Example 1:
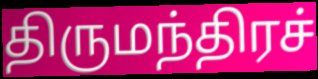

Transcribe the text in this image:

திருமந்திரச்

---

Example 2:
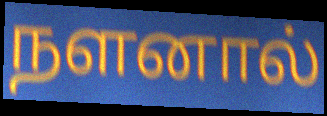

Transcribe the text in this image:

நளனால்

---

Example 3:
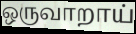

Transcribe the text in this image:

ஒருவாறாய்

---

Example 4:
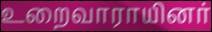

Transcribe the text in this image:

உறைவாராயினர்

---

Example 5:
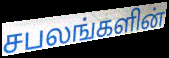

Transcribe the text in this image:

சபலங்களின்